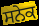
ਸਨੇਕ